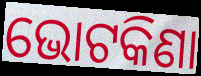
ଭୋଟକିଣା